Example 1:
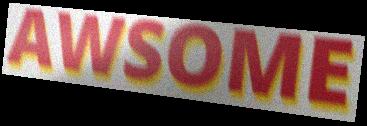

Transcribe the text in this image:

AWSOME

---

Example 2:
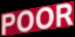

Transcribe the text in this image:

POOR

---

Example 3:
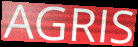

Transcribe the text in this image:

AGRIS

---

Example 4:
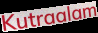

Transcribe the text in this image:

Kutraalam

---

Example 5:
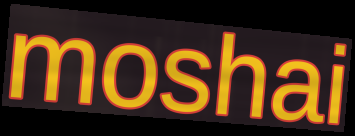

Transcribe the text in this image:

moshai